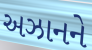
અઝાનને